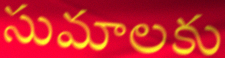
సుమాలకు